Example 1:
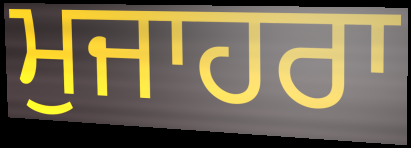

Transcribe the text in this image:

ਮੁਜਾਹਰਾ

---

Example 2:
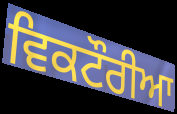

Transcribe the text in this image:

ਵਿਕਟੌਰੀਆ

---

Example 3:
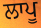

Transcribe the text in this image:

ਲਾਪੂ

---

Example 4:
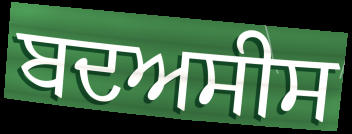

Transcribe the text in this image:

ਬਦਅਸੀਸ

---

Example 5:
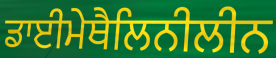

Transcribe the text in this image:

ਡਾਈਮੇਥੈਲਿਨੀਲੀਨ